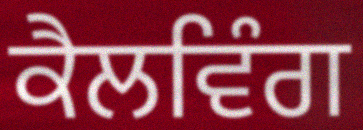
ਕੈਲਵਿੰਗ